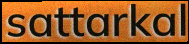
sattarkal